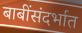
बाबींसंदर्भात